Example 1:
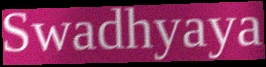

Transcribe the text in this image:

Swadhyaya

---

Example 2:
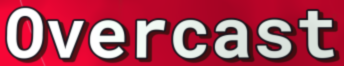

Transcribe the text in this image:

Overcast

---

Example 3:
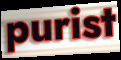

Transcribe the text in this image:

purist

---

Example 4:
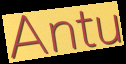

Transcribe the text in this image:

Antu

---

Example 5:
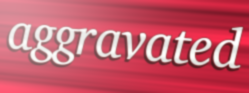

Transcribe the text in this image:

aggravated